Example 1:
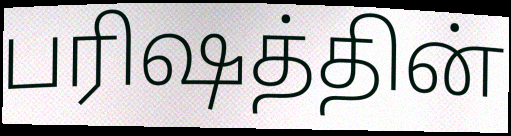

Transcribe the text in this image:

பரிஷத்தின்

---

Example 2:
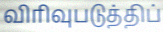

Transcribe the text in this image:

விரிவுபடுத்திப்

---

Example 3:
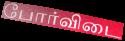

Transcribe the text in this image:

போர்விடை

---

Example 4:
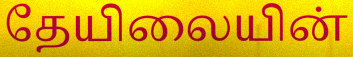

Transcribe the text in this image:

தேயிலையின்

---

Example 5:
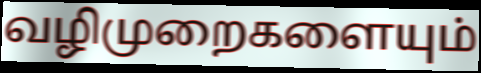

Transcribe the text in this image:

வழிமுறைகளையும்